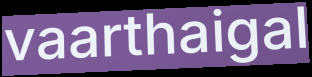
vaarthaigal